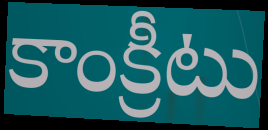
కాంక్రీటు